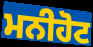
ਮਨੀਹੋਟ